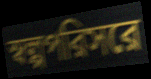
স্বল্পপরিসরে